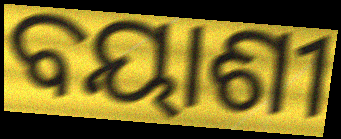
ବୟାଶୀ